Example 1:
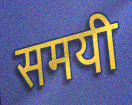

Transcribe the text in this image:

समयी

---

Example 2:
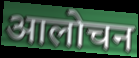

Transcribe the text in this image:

आलोचन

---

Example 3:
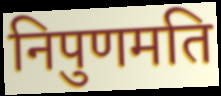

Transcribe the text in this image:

निपुणमति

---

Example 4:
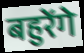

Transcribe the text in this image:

बहुरेंगे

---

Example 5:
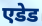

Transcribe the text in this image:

एडेड